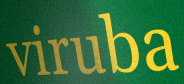
viruba